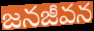
జనజీవన